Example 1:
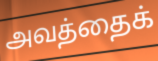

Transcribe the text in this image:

அவத்தைக்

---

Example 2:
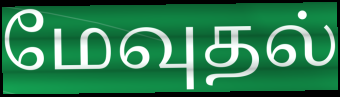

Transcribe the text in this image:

மேவுதல்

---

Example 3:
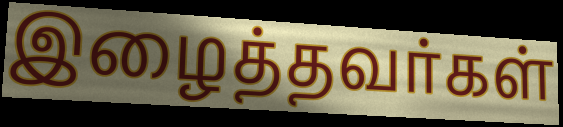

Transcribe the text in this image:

இழைத்தவர்கள்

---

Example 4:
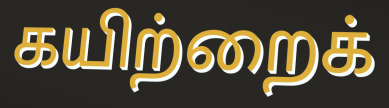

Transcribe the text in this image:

கயிற்றைக்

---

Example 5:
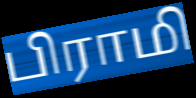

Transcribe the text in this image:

பிராமி